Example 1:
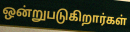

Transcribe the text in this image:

ஒன்றுபடுகிறார்கள்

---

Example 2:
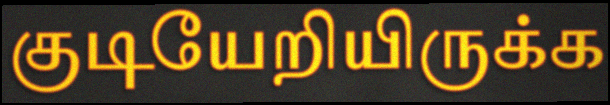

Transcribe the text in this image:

குடியேறியிருக்க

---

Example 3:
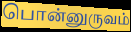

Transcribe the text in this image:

பொன்னுருவம்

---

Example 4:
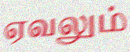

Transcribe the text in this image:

ஏவலும்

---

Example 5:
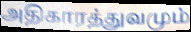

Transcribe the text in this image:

அதிகாரத்துவமும்